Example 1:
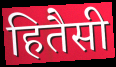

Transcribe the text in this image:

हितैसी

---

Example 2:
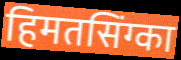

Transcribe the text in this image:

हिमतसिंग्का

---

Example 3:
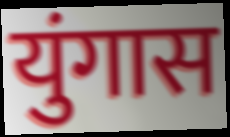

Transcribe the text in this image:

युंगास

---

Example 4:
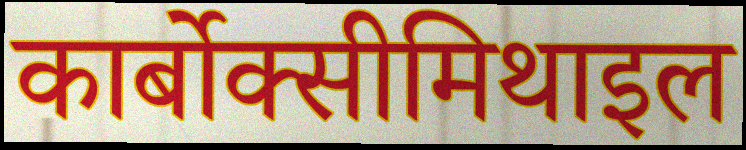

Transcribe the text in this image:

कार्बोक्सीमिथाइल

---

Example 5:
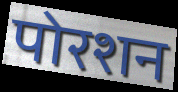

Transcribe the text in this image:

पोरशन